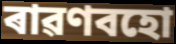
ৰাৱণবহো